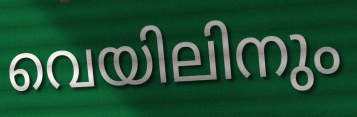
വെയിലിനും